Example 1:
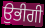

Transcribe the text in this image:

ਉਭੀਗੀ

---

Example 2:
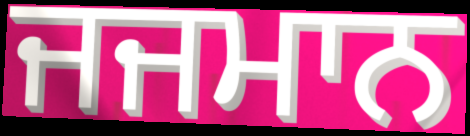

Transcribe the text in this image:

ਜਜਮਾਨ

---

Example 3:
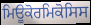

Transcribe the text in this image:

ਮਿਊਕੋਰਮਿਕੋਸਿਸ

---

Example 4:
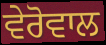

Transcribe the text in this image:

ਵੇਰੋਵਾਲ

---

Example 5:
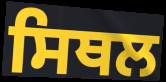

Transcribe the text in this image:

ਸਿਥਲ